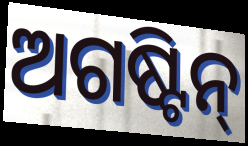
ଅଗଷ୍ଟିନ୍